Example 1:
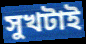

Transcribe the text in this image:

সুখটাই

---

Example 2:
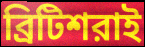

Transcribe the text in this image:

ব্রিটিশরাই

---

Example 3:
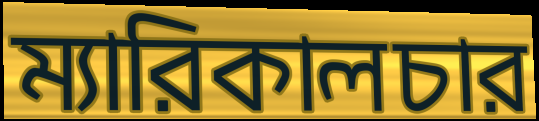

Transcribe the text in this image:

ম্যারিকালচার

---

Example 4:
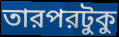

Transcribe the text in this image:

তারপরটুকু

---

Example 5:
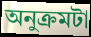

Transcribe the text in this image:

অনুক্রমটা